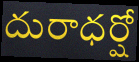
దురాధర్షో